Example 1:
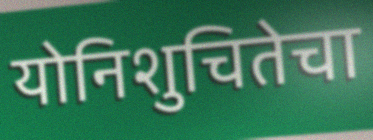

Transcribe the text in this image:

योनिशुचितेचा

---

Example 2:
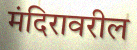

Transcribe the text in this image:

मंदिरावरील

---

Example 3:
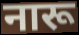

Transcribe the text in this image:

नारू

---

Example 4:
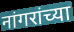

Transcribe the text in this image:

नांगरांच्या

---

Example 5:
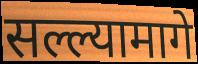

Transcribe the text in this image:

सल्ल्यामागे